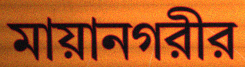
মায়ানগরীর